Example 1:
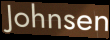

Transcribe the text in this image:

Johnsen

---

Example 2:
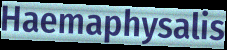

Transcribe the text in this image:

Haemaphysalis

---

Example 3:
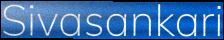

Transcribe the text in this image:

Sivasankari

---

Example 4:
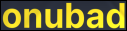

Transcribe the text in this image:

onubad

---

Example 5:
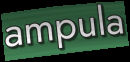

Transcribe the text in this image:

ampula